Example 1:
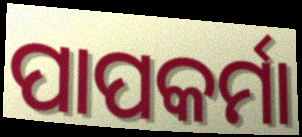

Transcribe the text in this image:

ପାପକର୍ମା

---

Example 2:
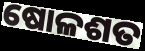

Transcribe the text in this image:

ଷୋଳଶତ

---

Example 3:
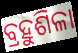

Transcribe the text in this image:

ବ୍ରହୁଶିଳା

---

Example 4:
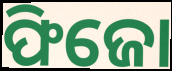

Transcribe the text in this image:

ଫିଜୋ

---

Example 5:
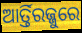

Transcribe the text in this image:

ଆର୍ତ୍ତିରଜ୍ଜୁରେ